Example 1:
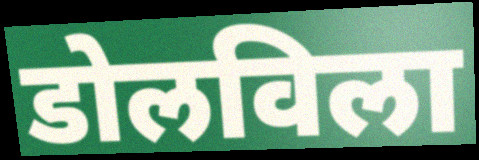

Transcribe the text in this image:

डोलविला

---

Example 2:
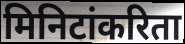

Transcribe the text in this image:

मिनिटांकरिता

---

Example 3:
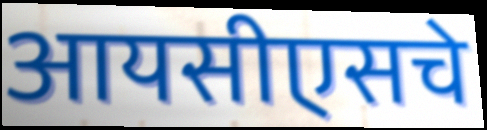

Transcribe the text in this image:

आयसीएसचे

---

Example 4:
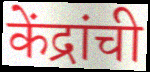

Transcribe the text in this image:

केंद्रांची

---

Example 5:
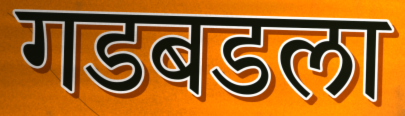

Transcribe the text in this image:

गडबडला